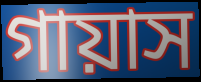
গায়াস